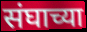
संघाच्या